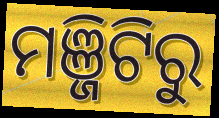
ମଞ୍ଜିଟିରୁ